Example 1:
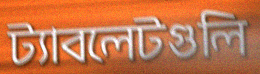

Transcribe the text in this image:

ট্যাবলেটগুলি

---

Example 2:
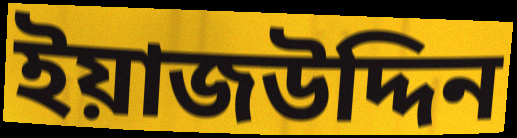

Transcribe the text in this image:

ইয়াজউদ্দিন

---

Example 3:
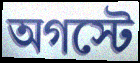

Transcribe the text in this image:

অগস্টে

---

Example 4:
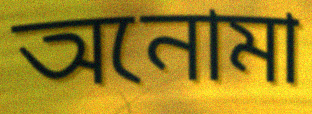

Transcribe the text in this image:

অনোমা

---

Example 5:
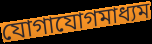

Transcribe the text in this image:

যোগাযোগমাধ্যম